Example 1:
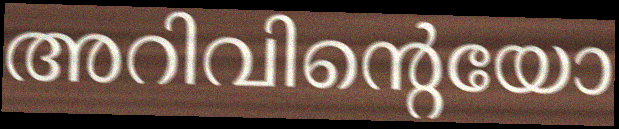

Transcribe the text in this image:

അറിവിന്റെയോ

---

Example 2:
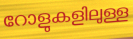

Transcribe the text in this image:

റോളുകളിലുള്ള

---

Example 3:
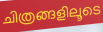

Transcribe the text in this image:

ചിത്രങ്ങളിലൂടെ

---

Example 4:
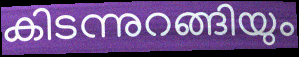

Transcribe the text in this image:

കിടന്നുറങ്ങിയും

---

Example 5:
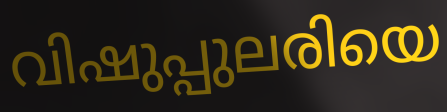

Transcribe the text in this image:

വിഷുപ്പുലരിയെ